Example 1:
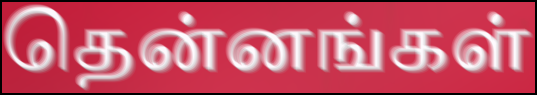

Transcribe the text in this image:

தென்னங்கள்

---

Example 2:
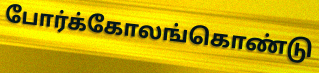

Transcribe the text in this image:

போர்க்கோலங்கொண்டு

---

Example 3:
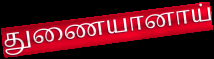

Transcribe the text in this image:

துணையானாய்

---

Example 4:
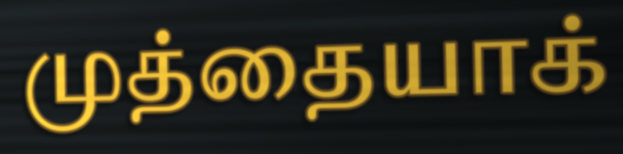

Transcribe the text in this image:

முத்தையாக்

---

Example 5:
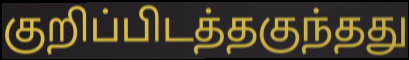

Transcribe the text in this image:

குறிப்பிடத்தகுந்தது